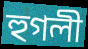
হুগলী